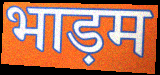
भाड़म